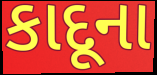
કાદૂના